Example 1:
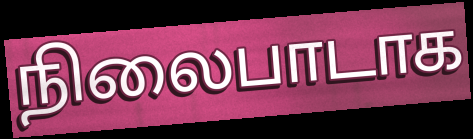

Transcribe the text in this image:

நிலைபாடாக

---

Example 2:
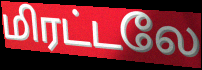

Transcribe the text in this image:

மிரட்டலே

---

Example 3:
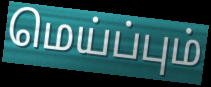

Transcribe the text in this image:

மெய்ப்பும்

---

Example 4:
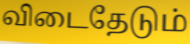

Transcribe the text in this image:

விடைதேடும்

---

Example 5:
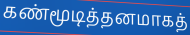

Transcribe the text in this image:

கண்மூடித்தனமாகத்